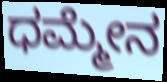
ಧಮ್ಮೇನ